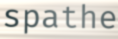
spathe